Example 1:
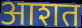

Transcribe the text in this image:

आशत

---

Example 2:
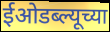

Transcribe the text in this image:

ईओडब्ल्यूच्या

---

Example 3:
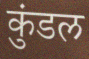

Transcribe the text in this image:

कुंडल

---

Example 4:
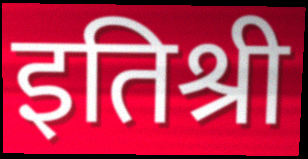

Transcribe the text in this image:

इतिश्री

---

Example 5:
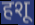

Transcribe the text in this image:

हशू